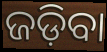
ଜଡ଼ିବା